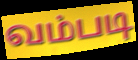
வம்படி